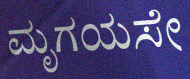
ಮೃಗಯಸೇ